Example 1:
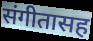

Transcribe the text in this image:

संगीतासह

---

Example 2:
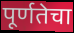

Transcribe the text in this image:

पूर्णतेचा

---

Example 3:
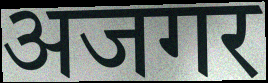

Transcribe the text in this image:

अजगर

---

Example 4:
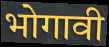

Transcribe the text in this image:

भोगावी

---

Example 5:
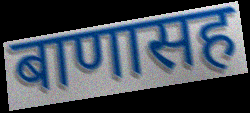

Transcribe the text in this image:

बाणासह